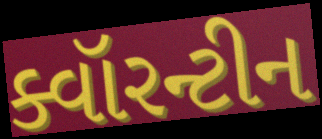
ક્વૉરન્ટીન